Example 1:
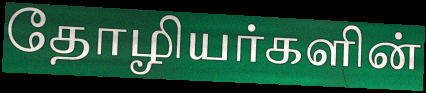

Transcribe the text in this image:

தோழியர்களின்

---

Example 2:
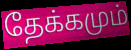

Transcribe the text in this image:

தேக்கமும்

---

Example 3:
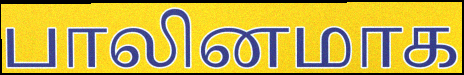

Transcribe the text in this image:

பாலினமாக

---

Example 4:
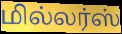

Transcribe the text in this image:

மில்லர்ஸ்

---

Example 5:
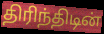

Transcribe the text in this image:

திரிந்திடின்